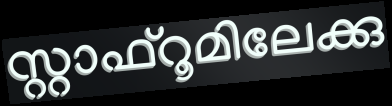
സ്റ്റാഫ്റൂമിലേക്കു